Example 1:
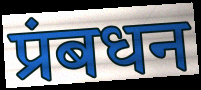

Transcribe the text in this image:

प्रंबधन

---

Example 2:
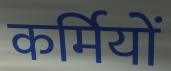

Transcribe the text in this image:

कर्मियों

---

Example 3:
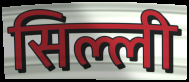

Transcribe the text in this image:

सिल्ली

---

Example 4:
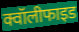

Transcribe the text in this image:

क्वॉलीफाइड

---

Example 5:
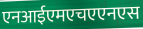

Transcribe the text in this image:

एनआईएमएचएएनएस